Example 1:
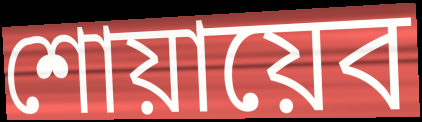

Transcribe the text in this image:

শোয়ায়েব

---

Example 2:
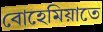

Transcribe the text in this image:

বোহেমিয়াতে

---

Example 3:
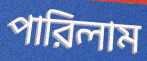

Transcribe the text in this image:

পারিলাম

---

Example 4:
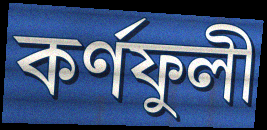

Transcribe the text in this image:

কর্ণফুলী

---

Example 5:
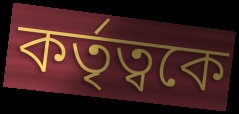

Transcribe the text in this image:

কর্তৃত্বকে